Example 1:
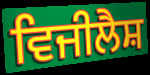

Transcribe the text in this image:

ਵਿਜੀਲੈਸ਼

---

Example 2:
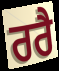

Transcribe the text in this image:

ਰਰੈ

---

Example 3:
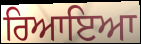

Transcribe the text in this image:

ਰਿਆਇਆ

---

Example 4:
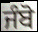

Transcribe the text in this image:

ਜੰਬੋ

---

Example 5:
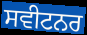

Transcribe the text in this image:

ਸਵੀਟਨਰ